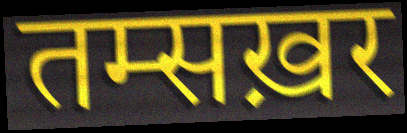
तम्सख़र